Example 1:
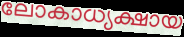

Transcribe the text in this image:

ലോകാധ്യക്ഷായ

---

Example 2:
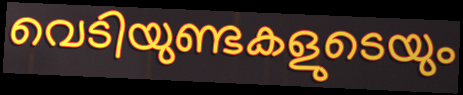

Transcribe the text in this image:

വെടിയുണ്ടകളുടെയും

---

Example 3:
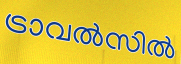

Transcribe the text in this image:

ട്രാവൽസിൽ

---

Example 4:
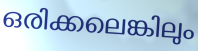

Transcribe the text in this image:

ഒരിക്കലെങ്കിലും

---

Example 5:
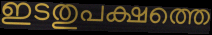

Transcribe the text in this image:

ഇടതുപക്ഷത്തെ